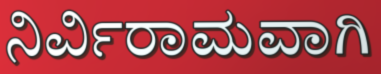
ನಿರ್ವಿರಾಮವಾಗಿ